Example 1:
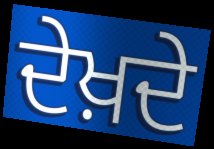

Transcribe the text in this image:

ਦੇਖ਼ਦੇ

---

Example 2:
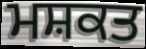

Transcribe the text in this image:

ਮਸ਼ਕਤ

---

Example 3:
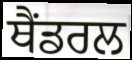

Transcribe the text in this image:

ਥੈਂਡਰਲ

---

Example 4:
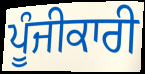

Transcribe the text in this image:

ਪੂੰਜੀਕਾਰੀ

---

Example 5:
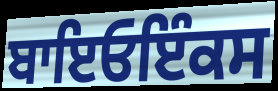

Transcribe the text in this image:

ਬਾਇਓਇੰਕਸ